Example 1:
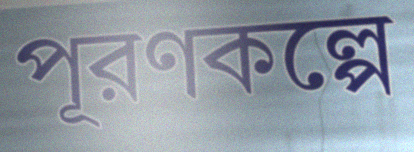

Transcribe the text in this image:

পূরণকল্পে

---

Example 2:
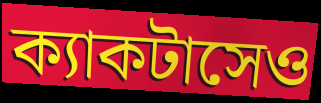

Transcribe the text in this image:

ক্যাকটাসেও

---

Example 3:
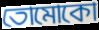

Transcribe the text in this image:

তোমোকো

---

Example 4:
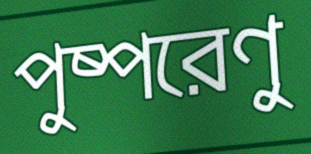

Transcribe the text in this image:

পুষ্পরেণু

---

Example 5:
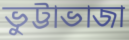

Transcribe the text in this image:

ভুট্টাভাজা